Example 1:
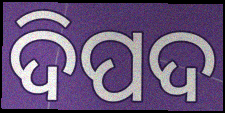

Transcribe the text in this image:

ଦିପଦ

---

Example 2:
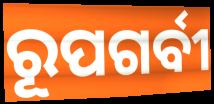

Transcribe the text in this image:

ରୂପଗର୍ବୀ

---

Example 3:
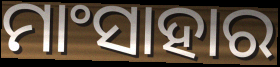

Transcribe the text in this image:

ମାଂସାହାର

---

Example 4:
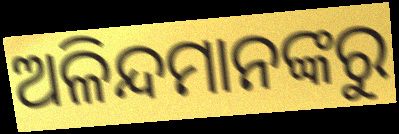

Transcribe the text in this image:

ଅଳିନ୍ଦମାନଙ୍କରୁ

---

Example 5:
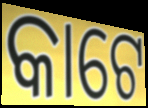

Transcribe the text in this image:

କାଟେ